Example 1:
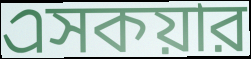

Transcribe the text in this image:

এসকয়ার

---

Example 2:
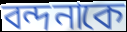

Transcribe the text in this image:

বন্দনাকে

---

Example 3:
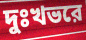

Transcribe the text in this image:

দুঃখভরে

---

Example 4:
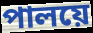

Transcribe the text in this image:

পালয়ে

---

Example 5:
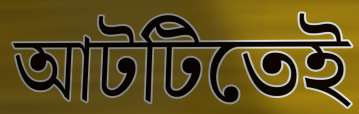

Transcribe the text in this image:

আটটিতেই